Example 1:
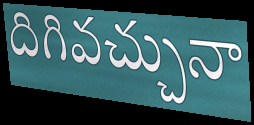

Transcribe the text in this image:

దిగివచ్చునా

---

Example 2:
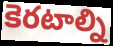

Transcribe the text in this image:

కెరటాల్ని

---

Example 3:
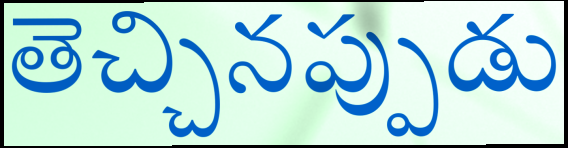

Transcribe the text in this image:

తెచ్చినప్పుడు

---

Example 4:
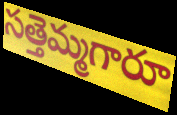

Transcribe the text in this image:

సత్తెమ్మగారూ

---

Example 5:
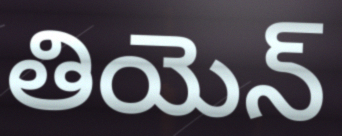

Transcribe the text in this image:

తియెన్